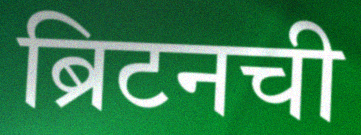
ब्रिटनची